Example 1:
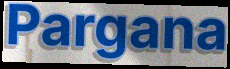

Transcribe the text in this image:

Pargana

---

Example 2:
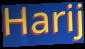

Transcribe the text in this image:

Harij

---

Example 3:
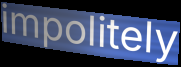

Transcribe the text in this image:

impolitely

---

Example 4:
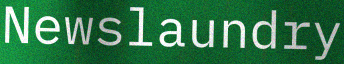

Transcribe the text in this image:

Newslaundry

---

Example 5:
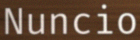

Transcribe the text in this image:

Nuncio